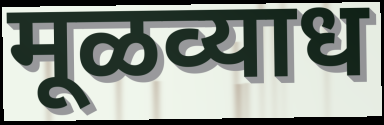
मूळव्याध